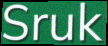
Sruk